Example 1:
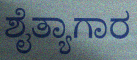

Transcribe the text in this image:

ಶೈತ್ಯಾಗಾರ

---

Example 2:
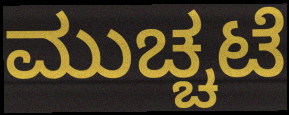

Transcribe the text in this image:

ಮುಚ್ಚಟೆ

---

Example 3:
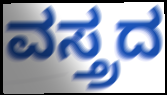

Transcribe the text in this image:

ವಸ್ತ್ರದ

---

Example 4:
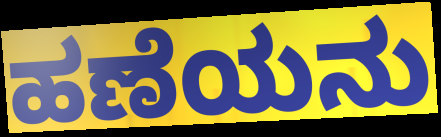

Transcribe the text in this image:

ಹಣೆಯನು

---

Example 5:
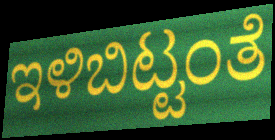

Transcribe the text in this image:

ಇಳಿಬಿಟ್ಟಂತೆ